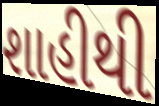
શાહીથી